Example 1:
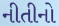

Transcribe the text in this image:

નીતીનો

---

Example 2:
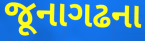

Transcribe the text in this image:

જૂનાગઢના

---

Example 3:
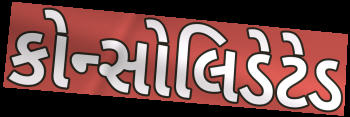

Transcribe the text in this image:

કોન્સોલિડેટેડ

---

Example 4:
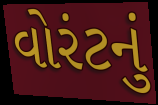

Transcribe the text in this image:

વોરંટનું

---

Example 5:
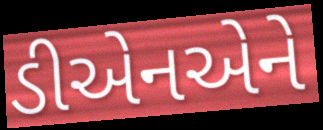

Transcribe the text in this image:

ડીએનએને